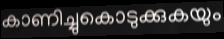
കാണിച്ചുകൊടുക്കുകയും